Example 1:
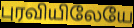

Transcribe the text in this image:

புரவியிலேயே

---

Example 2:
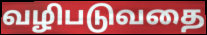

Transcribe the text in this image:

வழிபடுவதை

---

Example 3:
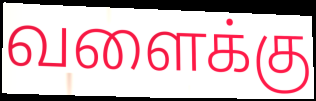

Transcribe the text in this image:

வளைக்கு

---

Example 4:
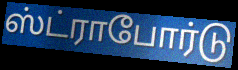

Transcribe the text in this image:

ஸ்ட்ராபோர்டு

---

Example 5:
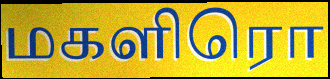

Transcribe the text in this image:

மகளிரொ